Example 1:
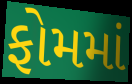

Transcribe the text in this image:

ફોમમાં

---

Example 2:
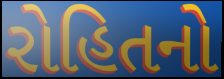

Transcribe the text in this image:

રોહિતનો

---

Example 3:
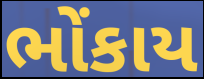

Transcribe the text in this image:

ભોંકાય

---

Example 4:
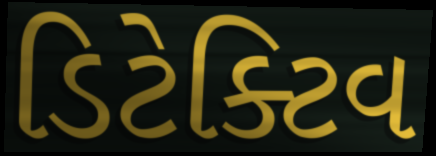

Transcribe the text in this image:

ડિટેક્ટિવ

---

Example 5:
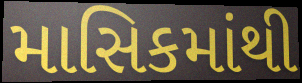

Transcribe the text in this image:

માસિકમાંથી